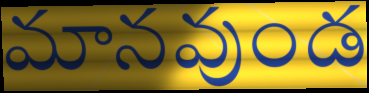
మానవుండ